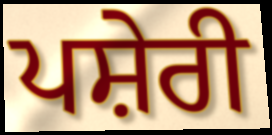
ਪਸ਼ੇਰੀ